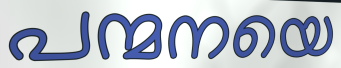
പന്മനയെ